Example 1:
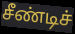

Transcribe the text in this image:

சீண்டிச்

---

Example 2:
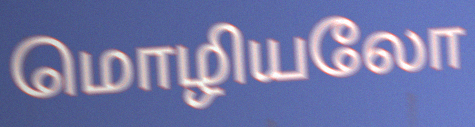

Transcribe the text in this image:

மொழியலோ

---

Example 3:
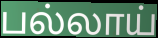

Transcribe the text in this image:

பல்லாய்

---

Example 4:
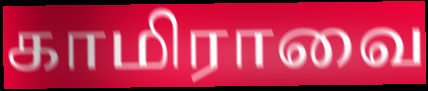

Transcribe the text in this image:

காமிராவை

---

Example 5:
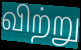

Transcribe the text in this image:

விற்று